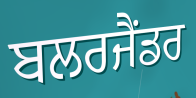
ਬਲਰਜੈਂਡਰ